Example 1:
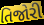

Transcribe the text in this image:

તિજોરી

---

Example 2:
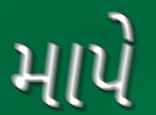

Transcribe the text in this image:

માપે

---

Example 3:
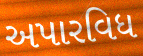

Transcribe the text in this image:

અપારવિધ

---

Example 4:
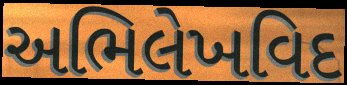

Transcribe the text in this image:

અભિલેખવિદ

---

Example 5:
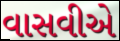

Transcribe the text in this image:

વાસવીએ